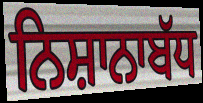
ਨਿਸ਼ਾਨਾਬੱਧ